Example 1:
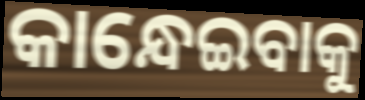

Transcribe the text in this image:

କାନ୍ଧେଇବାକୁ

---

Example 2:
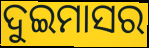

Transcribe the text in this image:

ଦୁଇମାସର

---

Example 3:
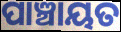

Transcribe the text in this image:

ପାଞ୍ଚାୟତ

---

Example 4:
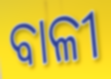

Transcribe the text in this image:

ବାଳୀ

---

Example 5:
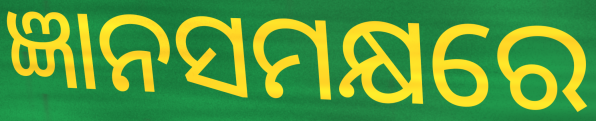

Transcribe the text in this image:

ଜ୍ଞାନସମକ୍ଷରେ